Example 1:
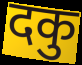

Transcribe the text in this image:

दकु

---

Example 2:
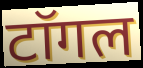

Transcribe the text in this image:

टॉगल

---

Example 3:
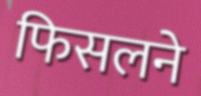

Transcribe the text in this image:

फिसलने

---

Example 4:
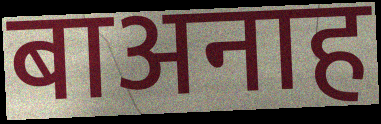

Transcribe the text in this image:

बाअनाह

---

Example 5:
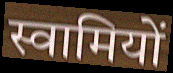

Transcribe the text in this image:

स्वामियों